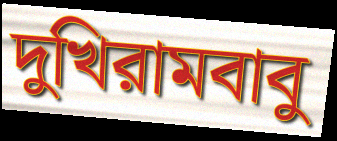
দুখিরামবাবু